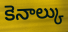
కెనాల్కు